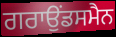
ਗਰਾਉਂਡਸਮੈਨ